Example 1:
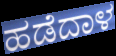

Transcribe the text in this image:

ಹಡೆದಾಳ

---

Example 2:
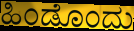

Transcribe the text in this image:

ಹಿಂಡೊಂದು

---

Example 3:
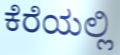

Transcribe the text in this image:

ಕೆರೆಯಲ್ಲಿ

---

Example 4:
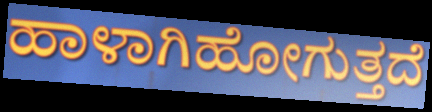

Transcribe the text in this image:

ಹಾಳಾಗಿಹೋಗುತ್ತದೆ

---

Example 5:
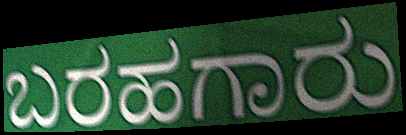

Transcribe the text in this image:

ಬರಹಗಾರು